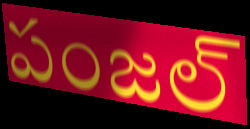
పంజల్